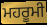
ਮਹਰੂਮੀ